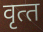
वृत्‍त